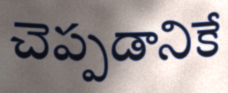
చెప్పడానికే